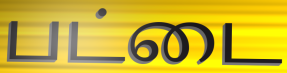
பட்டை